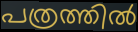
പത്രത്തിൽ